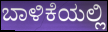
ಬಾಳಿಕೆಯಲ್ಲಿ